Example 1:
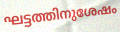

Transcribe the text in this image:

ഘട്ടത്തിനുശേഷം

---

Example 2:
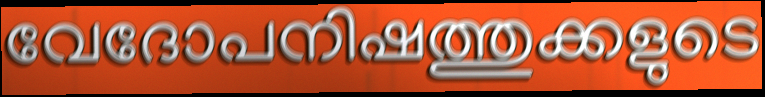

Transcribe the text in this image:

വേദോപനിഷത്തുക്കളുടെ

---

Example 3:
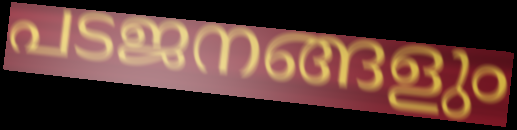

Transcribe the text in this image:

പടജനങ്ങളും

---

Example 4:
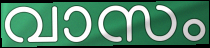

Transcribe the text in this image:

വാസം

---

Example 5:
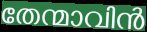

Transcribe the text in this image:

തേന്മാവിൻ